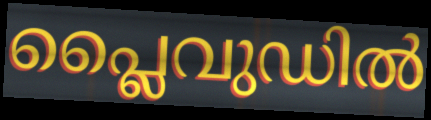
പ്ലൈവുഡിൽ